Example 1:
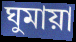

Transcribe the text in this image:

ঘুমায়া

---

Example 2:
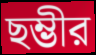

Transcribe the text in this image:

ছম্ভীর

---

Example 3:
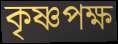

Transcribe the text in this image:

কৃষ্ণপক্ষ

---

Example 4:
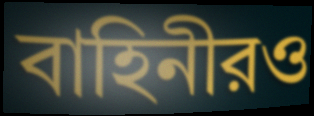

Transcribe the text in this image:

বাহিনীরও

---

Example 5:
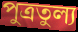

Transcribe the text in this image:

পুত্রতুল্য